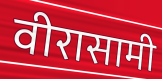
वीरासामी